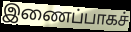
இணைப்பாகச்